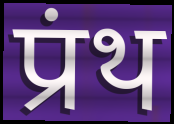
प्रंथ